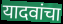
यादवांचा